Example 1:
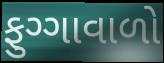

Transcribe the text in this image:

ફુગ્ગાવાળો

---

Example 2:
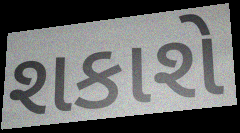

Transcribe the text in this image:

શકાશે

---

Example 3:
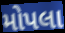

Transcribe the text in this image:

મોપલા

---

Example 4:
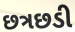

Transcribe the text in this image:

છત્રછડી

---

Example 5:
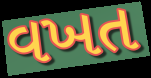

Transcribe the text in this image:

વખત